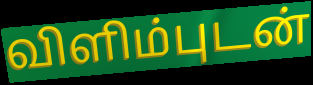
விளிம்புடன்